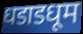
धडाडधूम